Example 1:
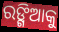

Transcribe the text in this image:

ରଙ୍ଗିଆକୁ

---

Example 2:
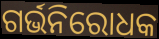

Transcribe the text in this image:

ଗର୍ଭନିରୋଧକ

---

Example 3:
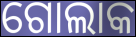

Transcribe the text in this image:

ଗୋଲାକ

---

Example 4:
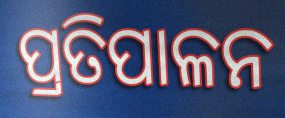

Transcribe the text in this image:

ପ୍ରତିପାଳନ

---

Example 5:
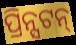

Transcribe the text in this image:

ପ୍ରିନ୍ସଟନ୍